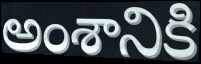
అంశానికి